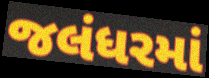
જલંધરમાં